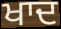
ਖਾਦ